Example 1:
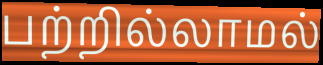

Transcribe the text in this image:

பற்றில்லாமல்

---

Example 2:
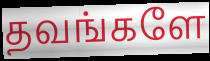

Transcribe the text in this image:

தவங்களே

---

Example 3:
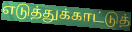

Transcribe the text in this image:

எடுத்துக்காட்டுத்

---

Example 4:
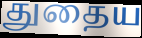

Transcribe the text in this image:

துதைய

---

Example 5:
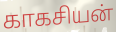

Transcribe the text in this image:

காகசியன்